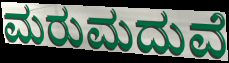
ಮರುಮದುವೆ